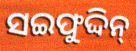
ସଇଫୁଦ୍ଦିନ୍